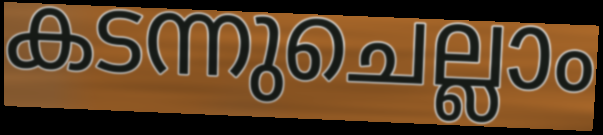
കടന്നുചെല്ലാം